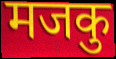
मजकु